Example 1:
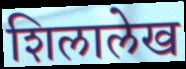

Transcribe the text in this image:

शिलालेख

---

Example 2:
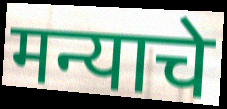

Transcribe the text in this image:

मन्याचे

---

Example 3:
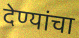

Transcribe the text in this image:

देण्यांचा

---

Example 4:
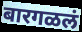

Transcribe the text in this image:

बारगळलं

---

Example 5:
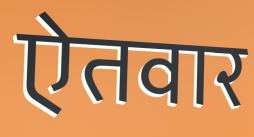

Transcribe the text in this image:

ऐतवार